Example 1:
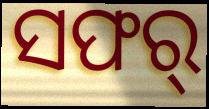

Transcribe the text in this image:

ସଫର୍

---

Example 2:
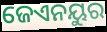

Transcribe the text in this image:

ଜେଏନୟୁର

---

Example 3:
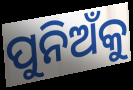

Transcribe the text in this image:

ପୁନିଅଁକୁ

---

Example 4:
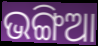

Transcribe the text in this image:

ଭଙ୍ଗିଆ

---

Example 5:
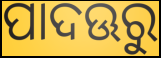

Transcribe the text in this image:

ପାଦଊରୁ